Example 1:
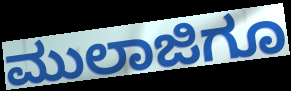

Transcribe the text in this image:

ಮುಲಾಜಿಗೂ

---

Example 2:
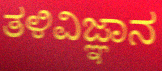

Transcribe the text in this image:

ತಳಿವಿಜ್ಞಾನ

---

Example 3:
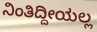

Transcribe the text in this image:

ನಿಂತಿದ್ದೀಯಲ್ಲ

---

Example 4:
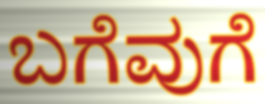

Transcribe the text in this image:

ಬಗೆವುಗೆ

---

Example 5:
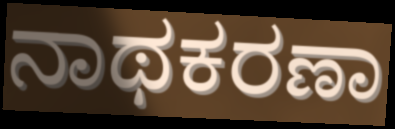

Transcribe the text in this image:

ನಾಥಕರಣಾ